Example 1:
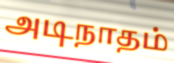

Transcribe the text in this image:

அடிநாதம்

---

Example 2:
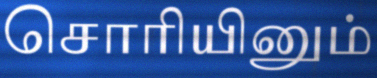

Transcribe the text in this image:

சொரியினும்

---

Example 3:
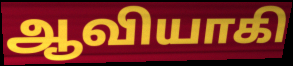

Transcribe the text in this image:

ஆவியாகி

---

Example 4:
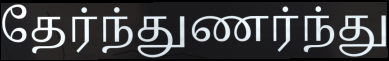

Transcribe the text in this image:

தேர்ந்துணர்ந்து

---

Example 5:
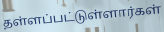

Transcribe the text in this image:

தள்ளப்பட்டுள்ளார்கள்